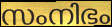
സംനിഭം